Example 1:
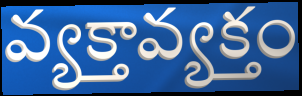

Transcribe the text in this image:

వ్యక్తావ్యక్తం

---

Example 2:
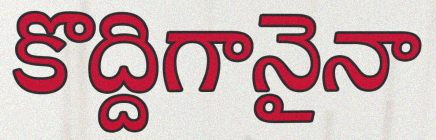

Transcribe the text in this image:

కొద్దిగానైనా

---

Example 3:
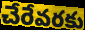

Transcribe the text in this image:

చేరేవరకు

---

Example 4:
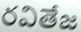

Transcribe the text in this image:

రవితేజ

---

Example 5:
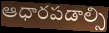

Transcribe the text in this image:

ఆధారపడాల్సి